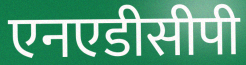
एनएडीसीपी